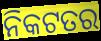
ନିକଟତର